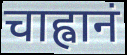
चाह्वानं